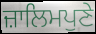
ਜ਼ਾਲਿਮਪੁਣੇ